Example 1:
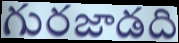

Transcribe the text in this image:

గురజాడది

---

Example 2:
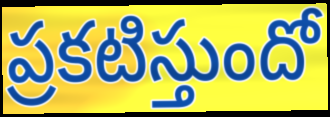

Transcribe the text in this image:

ప్రకటిస్తుందో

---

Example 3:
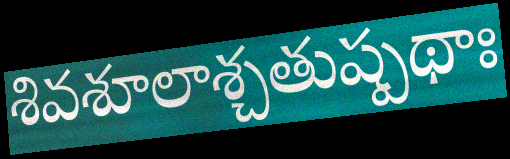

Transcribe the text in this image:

శివశూలాశ్చతుష్పథాః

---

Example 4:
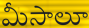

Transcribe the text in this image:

మీసాలూ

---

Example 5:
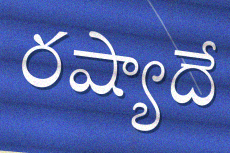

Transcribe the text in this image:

రష్యాదే